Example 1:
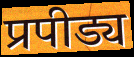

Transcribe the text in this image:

प्रपीड्य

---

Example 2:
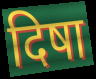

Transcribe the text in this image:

दिषा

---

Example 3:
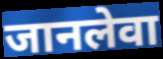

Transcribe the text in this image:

जानलेवा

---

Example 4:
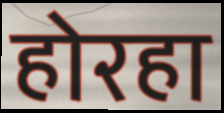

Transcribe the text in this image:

होरहा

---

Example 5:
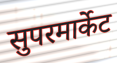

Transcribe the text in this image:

सुपरमार्केट